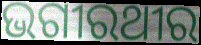
ଭଗୀରଥୀର